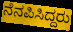
ನೆನಪಿಸಿದ್ದರು